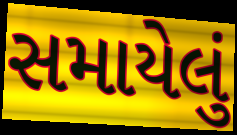
સમાયેલું